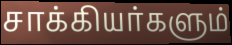
சாக்கியர்களும்